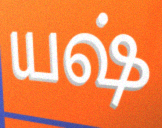
யஷ்